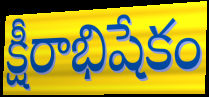
క్షీరాభిషేకం